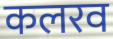
कलरव